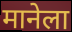
मानेला